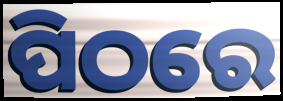
ପିଠରେ